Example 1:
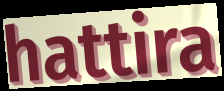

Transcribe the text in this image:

hattira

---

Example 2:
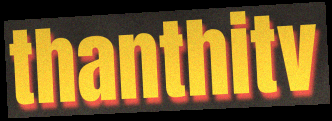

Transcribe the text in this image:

thanthitv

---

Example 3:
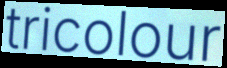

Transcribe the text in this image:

tricolour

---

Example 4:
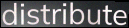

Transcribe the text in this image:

distribute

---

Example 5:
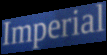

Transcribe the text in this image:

Imperial